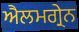
ਐਲਮਗ੍ਰੇਨ